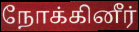
நோக்கினீர்